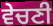
ਵੇਚਣੀ